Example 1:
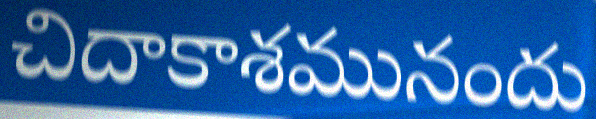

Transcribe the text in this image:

చిదాకాశమునందు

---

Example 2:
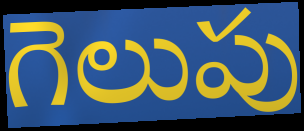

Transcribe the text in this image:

గెలుపు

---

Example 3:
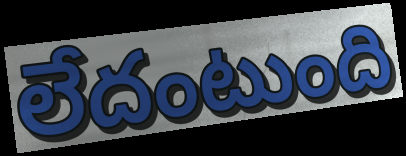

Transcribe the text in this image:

లేదంటుంది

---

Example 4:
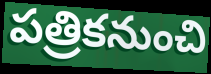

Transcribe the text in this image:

పత్రికనుంచి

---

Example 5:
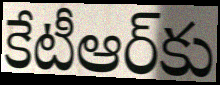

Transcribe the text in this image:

కేటీఆర్‌కు